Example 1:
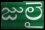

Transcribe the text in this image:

జులై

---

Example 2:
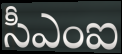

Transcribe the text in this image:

సీఎంఐ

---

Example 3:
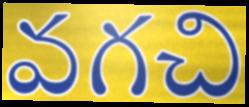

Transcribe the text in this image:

వగచి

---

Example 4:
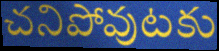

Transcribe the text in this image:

చనిపోవుటకు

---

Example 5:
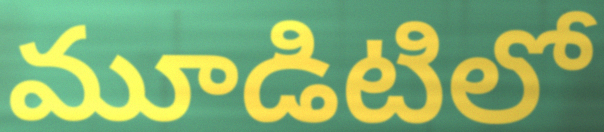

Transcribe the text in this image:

మూడిటిలో